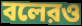
বলেরও